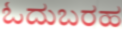
ಓದುಬರಹ